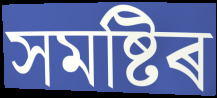
সমষ্টিৰ